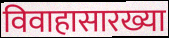
विवाहासारख्या